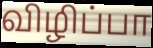
விழிப்பா